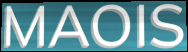
MAOIS